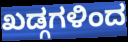
ಖಡ್ಗಗಳಿಂದ